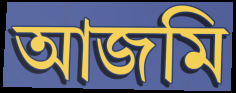
আজমি